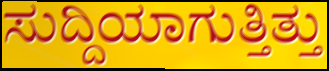
ಸುದ್ದಿಯಾಗುತ್ತಿತ್ತು